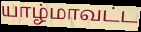
யாழ்மாவட்ட